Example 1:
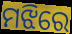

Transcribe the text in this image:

ମଝିରେ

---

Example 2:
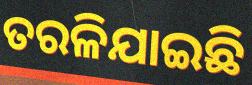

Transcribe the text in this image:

ତରଳିଯାଇଛି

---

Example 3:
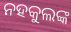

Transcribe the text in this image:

ନହକୁଲଙ୍କ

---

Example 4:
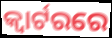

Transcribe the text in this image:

କ୍ୱାର୍ଟରରେ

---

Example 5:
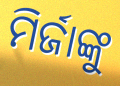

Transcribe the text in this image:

ମିର୍ଜାଙ୍କୁ